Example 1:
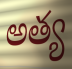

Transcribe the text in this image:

అత్య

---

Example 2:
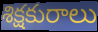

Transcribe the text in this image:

శిక్షకురాలు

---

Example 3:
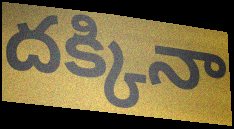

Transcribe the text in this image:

దక్కినా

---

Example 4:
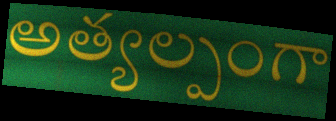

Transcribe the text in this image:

అత్యల్పంగా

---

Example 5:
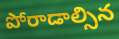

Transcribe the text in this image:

పోరాడాల్సిన